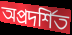
অপ্রদর্শিত